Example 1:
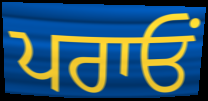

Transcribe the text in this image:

ਪਰਾਓਂ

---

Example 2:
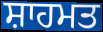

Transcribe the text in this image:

ਸ਼ਾਹਮਤ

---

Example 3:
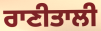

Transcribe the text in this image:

ਰਾਣੀਤਾਲੀ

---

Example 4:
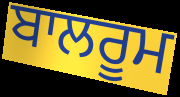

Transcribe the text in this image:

ਬਾਲਰੂਮ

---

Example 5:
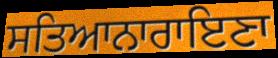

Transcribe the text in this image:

ਸਤਿਆਨਾਰਾਇਣਾ